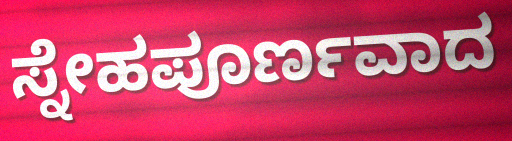
ಸ್ನೇಹಪೂರ್ಣವಾದ